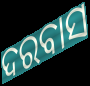
ଦରବାସ